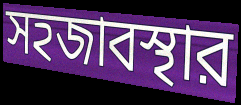
সহজাবস্থার